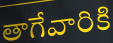
తాగేవారికి